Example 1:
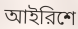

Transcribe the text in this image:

আইরিশে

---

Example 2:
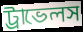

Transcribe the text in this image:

ট্রাভেলস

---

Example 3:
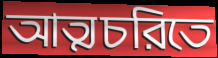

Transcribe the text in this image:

আত্মচরিতে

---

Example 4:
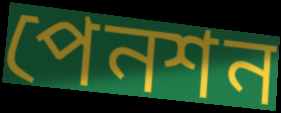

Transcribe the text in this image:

পেনশন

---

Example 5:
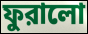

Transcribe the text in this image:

ফুরালো